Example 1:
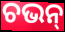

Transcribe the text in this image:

ଚଭନ୍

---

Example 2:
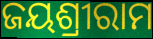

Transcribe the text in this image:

ଜୟଶ୍ରୀରାମ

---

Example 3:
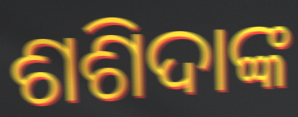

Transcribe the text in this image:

ଶଶିଦାଙ୍କ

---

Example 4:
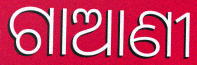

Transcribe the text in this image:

ଗାଆଣୀ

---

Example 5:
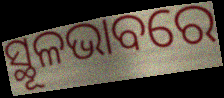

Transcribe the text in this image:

ସ୍ଥୂଳଭାବରେ